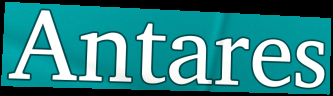
Antares